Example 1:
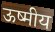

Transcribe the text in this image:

ऊष्मीय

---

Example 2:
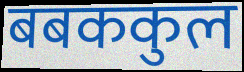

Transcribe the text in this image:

बबककुल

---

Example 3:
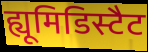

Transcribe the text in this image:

ह्यूमिडिस्टैट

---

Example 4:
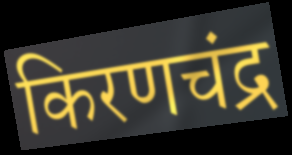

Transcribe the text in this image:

किरणचंद्र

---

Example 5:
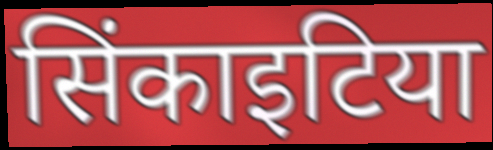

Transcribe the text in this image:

सिंकाइटिया